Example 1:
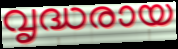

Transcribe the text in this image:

വൃദ്ധരായ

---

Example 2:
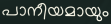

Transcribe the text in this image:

പാനീയമായും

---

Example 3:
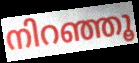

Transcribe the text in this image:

നിറഞ്ഞൂ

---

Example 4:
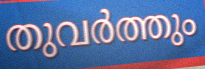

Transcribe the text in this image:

തുവർത്തും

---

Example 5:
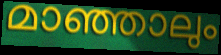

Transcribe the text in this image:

മാഞ്ഞാലും